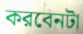
করবেনটা